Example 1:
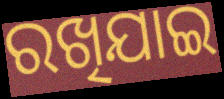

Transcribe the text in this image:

ରଖିଯାଇ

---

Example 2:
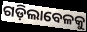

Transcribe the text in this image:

ଗଡ଼ିଲାବେଳକୁ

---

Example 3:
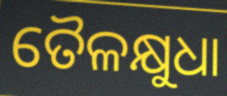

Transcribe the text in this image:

ତୈଳକ୍ଷୁଧା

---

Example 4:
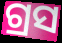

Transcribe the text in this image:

ଗ୍ରସ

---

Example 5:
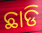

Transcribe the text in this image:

ଛାଡି